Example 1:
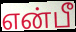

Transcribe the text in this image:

என்பீ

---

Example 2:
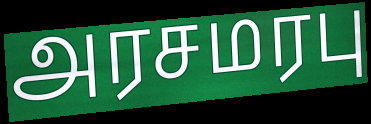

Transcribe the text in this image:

அரசமரபு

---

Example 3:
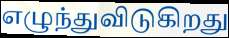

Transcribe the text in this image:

எழுந்துவிடுகிறது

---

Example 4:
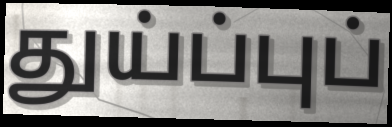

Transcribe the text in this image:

துய்ப்புப்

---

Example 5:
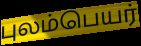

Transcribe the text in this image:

புலம்பெயர்